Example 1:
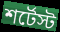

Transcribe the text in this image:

শর্টেস্ট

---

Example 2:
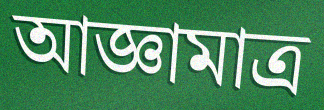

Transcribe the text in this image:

আজ্ঞামাত্র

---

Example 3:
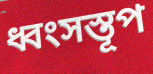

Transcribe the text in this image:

ধ্বংসস্তূপ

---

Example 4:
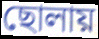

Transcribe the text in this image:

ছোলায়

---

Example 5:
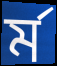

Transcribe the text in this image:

র্ম